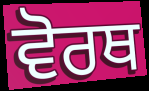
ਵੋਰਥ